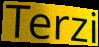
Terzi